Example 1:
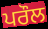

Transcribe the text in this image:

ਪਰੌਲ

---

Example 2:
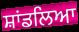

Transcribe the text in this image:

ਸ਼ਾਂਡਲਿਆ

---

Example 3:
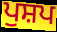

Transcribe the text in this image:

ਪੁਸ਼ਪ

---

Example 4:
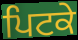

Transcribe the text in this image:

ਪਿਟਕੇ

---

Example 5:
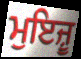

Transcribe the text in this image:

ਮੁਇਜ਼ੂ